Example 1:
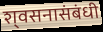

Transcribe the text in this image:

श्वसनासंबंधी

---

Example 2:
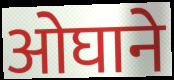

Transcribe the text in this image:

ओघाने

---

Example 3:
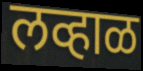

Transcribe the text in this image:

लव्हाळ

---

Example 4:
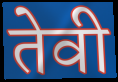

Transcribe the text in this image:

तेवी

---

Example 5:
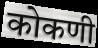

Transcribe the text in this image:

कोकणी